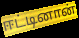
ஈட்டினான்